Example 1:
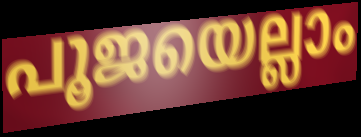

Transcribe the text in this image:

പൂജയെല്ലാം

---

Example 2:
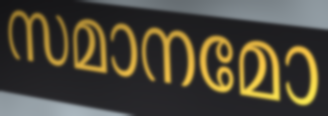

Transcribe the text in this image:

സമാനമോ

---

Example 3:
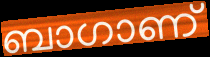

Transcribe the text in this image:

ബാഗാണ്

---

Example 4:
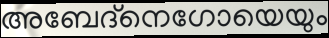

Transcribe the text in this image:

അബേദ്നെഗോയെയും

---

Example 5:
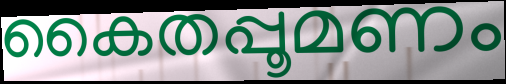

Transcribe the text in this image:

കൈതപ്പൂമണം